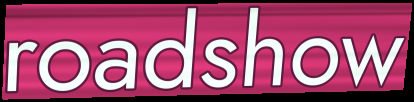
roadshow